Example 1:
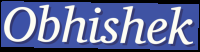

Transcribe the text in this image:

Obhishek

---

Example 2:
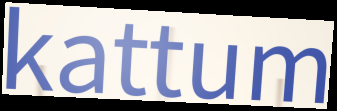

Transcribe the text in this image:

kattum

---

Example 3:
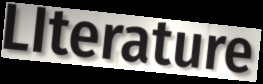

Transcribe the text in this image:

LIterature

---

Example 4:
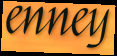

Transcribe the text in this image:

enney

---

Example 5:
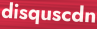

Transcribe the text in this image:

disquscdn